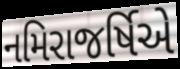
નમિરાજર્ષિએ